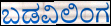
ಬಡವಿಲಿಂಗ